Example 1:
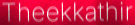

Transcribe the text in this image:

Theekkathir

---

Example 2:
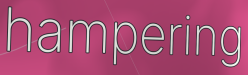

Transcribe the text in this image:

hampering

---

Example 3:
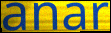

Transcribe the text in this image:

anar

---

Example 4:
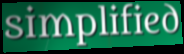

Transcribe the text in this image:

simplified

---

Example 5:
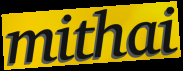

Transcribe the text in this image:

mithai